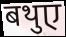
बथुए